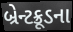
બ્રેન્ટક્રૂડના